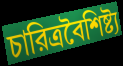
চারিত্রবৈশিষ্ট্য